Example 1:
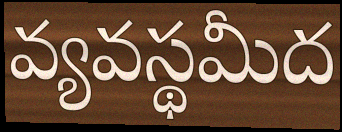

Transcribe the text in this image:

వ్యవస్థమీద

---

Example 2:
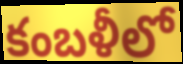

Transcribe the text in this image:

కంబళీలో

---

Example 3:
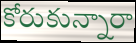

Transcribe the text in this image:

కోరుకున్నారా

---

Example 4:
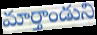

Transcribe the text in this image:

మార్తాండుని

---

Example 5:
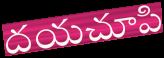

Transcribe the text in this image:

దయచూపి